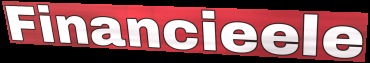
Financieele